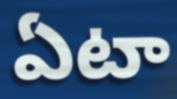
ఏటా